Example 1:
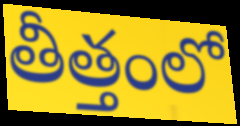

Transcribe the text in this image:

తీత్తంలో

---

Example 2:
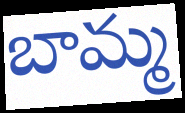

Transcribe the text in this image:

బామ్మ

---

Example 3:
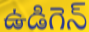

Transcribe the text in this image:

ఉడిగెన్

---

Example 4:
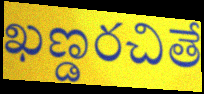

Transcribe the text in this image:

ఖణ్డరచితే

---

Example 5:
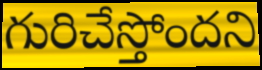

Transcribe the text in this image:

గురిచేస్తోందని